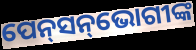
ପେନ୍‌ସନ୍‌ଭୋଗୀଙ୍କ